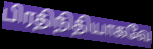
பிரதிநிதியாகவே